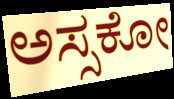
ಅಸ್ಸಕೋ